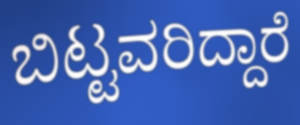
ಬಿಟ್ಟವರಿದ್ದಾರೆ